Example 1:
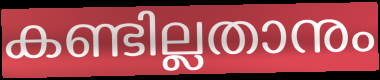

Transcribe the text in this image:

കണ്ടില്ലതാനും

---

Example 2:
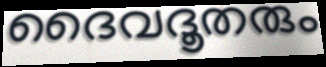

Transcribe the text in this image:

ദൈവദൂതരും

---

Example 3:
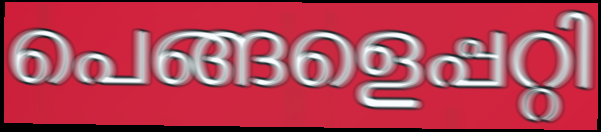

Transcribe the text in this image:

പെങ്ങളെപ്പറ്റി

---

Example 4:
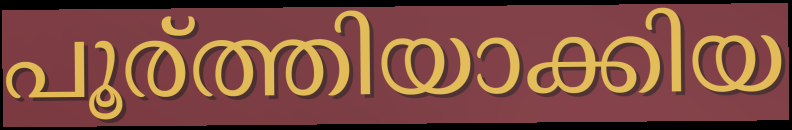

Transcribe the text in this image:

പൂര്ത്തിയാക്കിയ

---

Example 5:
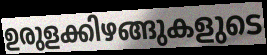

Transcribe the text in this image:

ഉരുളക്കിഴങ്ങുകളുടെ